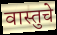
वास्तुचे